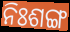
ନିଃଶଙ୍ଗ